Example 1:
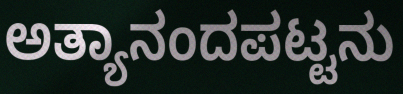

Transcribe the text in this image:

ಅತ್ಯಾನಂದಪಟ್ಟನು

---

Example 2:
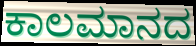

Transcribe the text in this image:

ಕಾಲಮಾನದ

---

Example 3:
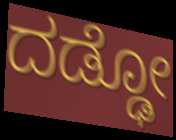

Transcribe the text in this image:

ದಡ್ಢೋ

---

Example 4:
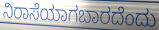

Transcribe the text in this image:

ನಿರಾಸೆಯಾಗಬಾರದೆಂದು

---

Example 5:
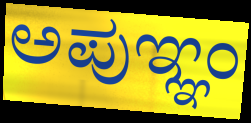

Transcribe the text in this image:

ಅಪುಞ್ಞಂ